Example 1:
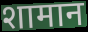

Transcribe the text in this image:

शामान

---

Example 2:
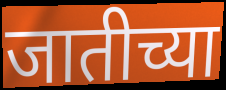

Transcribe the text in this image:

जातीच्या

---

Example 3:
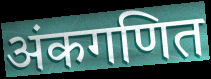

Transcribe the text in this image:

अंकगणित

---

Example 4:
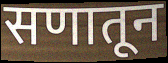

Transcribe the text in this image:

सणातून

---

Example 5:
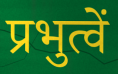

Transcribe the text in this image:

प्रभुत्वें